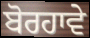
ਬੋਰਹਾਵੇ